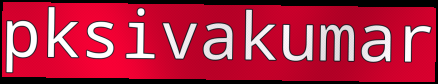
pksivakumar